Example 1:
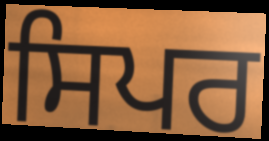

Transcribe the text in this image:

ਸਿਪਰ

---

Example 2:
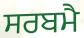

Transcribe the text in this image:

ਸਰਬਮੈ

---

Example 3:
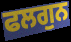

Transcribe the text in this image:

ਫਲਗੁਨ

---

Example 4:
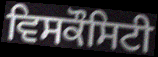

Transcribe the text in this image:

ਵਿਸਕੌਸਿਟੀ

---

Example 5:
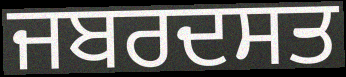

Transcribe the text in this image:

ਜਬਰਦਸਤ